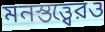
মনস্তত্ত্বেরও